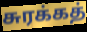
சுரக்கத்